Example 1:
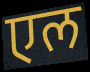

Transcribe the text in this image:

एल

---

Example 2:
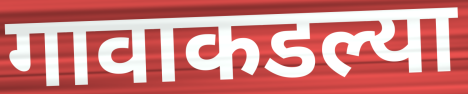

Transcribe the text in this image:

गावाकडल्या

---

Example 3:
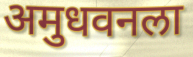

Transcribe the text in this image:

अमुधवनला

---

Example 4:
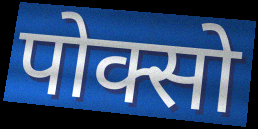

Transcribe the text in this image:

पोक्सो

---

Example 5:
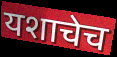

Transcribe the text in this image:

यशाचेच